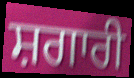
ਸ਼ਗਾਰੀ